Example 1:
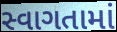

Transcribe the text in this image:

સ્વાગતામાં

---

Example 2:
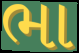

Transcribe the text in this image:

ભા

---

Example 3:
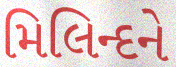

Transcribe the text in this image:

મિલિન્દને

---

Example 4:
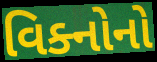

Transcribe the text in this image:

વિક્નોનો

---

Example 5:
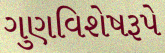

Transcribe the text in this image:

ગુણવિશેષરૂપે